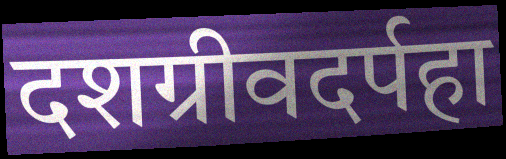
दशग्रीवदर्पहा